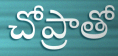
చోప్రాతో